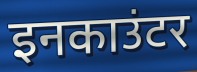
इनकाउंटर